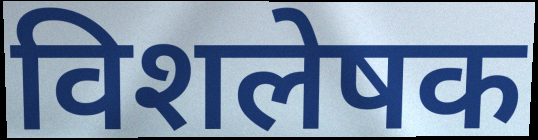
विशलेषक